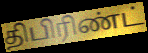
திபிரிண்ட்